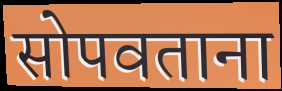
सोपवताना